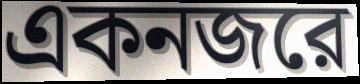
একনজরে